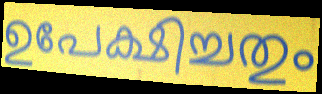
ഉപേക്ഷിച്ചതും